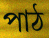
পাঠ